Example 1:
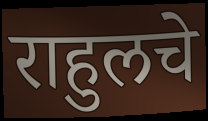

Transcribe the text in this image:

राहुलचे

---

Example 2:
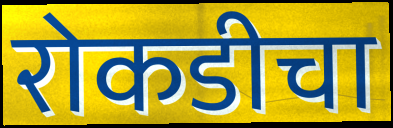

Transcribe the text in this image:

रोकडीचा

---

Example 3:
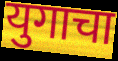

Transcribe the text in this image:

युगाचा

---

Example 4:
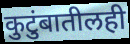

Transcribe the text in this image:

कुटुंबातीलही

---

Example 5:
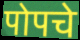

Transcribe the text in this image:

पोपचे